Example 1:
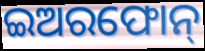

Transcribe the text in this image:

ଇଅରଫୋନ୍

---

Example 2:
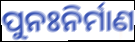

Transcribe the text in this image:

ପୁନଃନିର୍ମାଣ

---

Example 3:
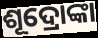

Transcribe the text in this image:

ଶୂଦ୍ରୋଙ୍କା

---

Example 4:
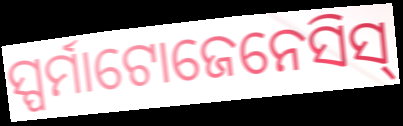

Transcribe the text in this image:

ସ୍ପର୍ମାଟୋଜେନେସିସ୍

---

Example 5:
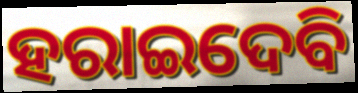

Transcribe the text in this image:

ହରାଇଦେବି